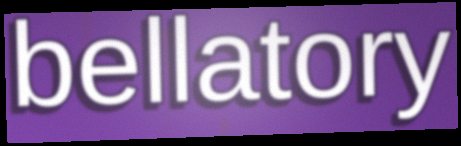
bellatory